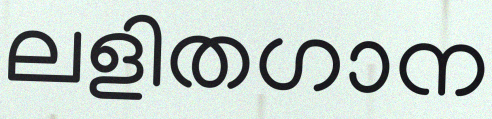
ലളിതഗാന